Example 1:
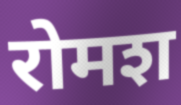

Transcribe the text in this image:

रोमश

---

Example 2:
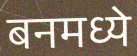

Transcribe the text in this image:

बनमध्ये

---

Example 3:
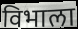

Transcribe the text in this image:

विभाला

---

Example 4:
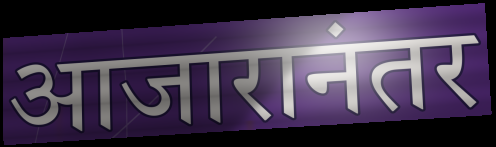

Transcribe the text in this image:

आजारानंतर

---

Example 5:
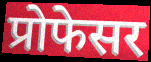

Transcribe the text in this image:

प्रोफेसर